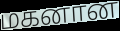
மகனான